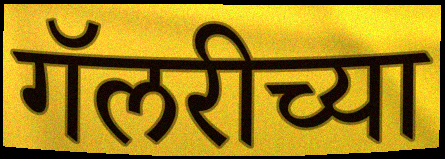
गॅलरीच्या